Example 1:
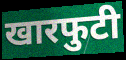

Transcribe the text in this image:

खारफुटी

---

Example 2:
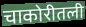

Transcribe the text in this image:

चाकोरीतली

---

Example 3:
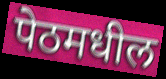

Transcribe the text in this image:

पेठमधील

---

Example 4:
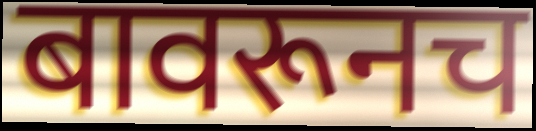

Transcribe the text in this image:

बावरूनच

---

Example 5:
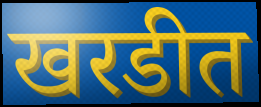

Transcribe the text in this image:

खरडीत